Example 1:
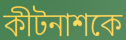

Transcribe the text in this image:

কীটনাশকে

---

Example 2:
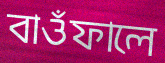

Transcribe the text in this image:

বাওঁফালে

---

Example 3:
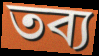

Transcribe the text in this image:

তব্য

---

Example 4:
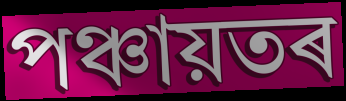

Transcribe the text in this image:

পঞ্চায়তৰ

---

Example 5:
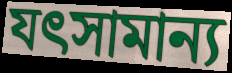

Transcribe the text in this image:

যৎসামান্য